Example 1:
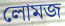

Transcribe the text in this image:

লোমজ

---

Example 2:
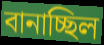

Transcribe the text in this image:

বানাচ্ছিল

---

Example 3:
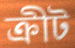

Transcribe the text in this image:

ক্রীট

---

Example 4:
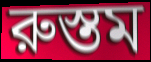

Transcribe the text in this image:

রুস্তম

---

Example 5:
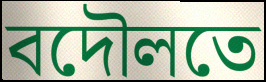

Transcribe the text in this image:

বদৌলতে